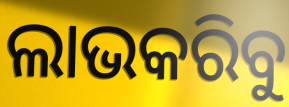
ଲାଭକରିବୁ